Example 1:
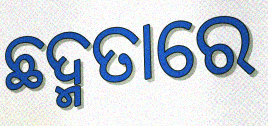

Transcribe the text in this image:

ଛଦ୍ମତାରେ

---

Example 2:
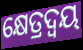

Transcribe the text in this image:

କ୍ଷେତ୍ରଦ୍ଵୟ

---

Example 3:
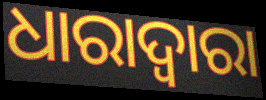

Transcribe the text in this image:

ଧାରାଦ୍ୱାରା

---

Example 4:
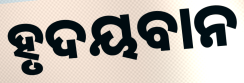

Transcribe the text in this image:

ହୃଦୟବାନ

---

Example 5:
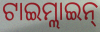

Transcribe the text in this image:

ଟାଇମ୍ଲାଇନ୍